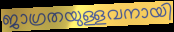
ജാഗ്രതയുള്ളവനായി